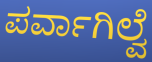
ಪರ್ವಾಗಿಲ್ವೆ